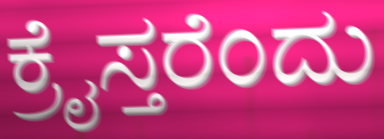
ಕ್ರೈಸ್ತರೆಂದು